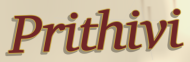
Prithivi